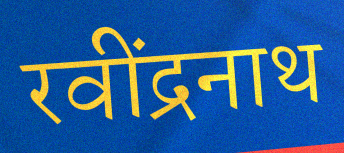
रवींद्रनाथ